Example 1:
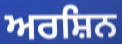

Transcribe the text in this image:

ਅਰਸ਼ਿਨ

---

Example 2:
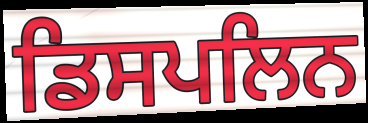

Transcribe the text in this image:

ਡਿਸਪਲਿਨ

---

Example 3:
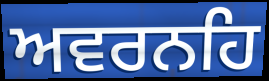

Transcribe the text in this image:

ਅਵਰਨਹਿ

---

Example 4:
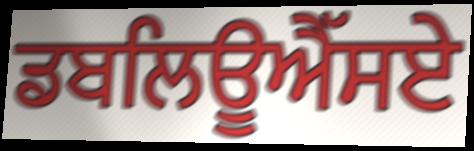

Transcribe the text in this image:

ਡਬਲਿਊਐੱਸਏ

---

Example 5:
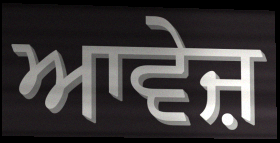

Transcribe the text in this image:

ਆਵੇਜ਼